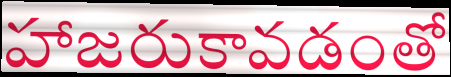
హాజరుకావడంతో